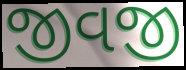
જીવજી